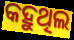
କହୁଥିଲ